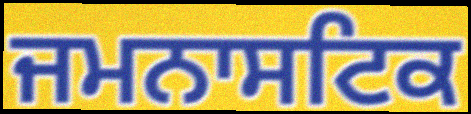
ਜਮਨਾਸਟਿਕ